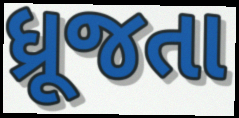
ધ્રૂજતા